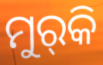
ମୁର୍‌କି